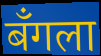
बँगला